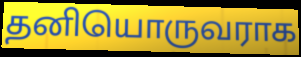
தனியொருவராக